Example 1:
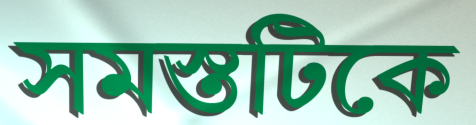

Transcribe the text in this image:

সমস্তটিকে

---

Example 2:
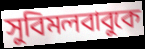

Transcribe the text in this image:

সুবিমলবাবুকে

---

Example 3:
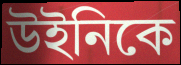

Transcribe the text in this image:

উইনিকে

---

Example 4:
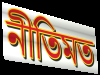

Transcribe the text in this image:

নীতিমত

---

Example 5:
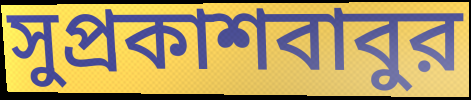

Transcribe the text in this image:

সুপ্রকাশবাবুর